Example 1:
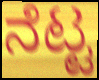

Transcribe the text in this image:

ನೆಟ್ಟ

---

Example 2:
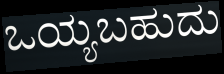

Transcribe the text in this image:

ಒಯ್ಯಬಹುದು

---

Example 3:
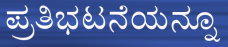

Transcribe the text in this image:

ಪ್ರತಿಭಟನೆಯನ್ನೂ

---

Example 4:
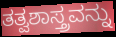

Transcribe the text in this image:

ತತ್ವಶಾಸ್ತ್ರವನ್ನು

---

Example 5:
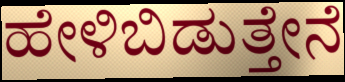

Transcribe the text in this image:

ಹೇಳಿಬಿಡುತ್ತೇನೆ